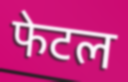
फेटल